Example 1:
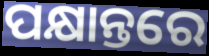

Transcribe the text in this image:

ପକ୍ଷାନ୍ତରେ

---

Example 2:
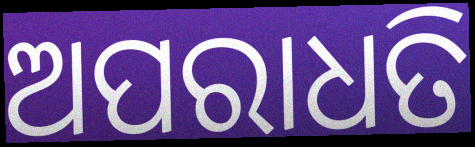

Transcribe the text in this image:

ଅପରାଧତି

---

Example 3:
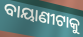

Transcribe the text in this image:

ବାୟାଣୀଟାକୁ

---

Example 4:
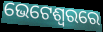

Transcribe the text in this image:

ଭେଟେଶ୍ୱରରେ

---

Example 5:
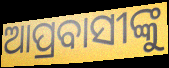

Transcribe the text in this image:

ଆପ୍ରବାସୀଙ୍କୁ